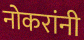
नोकरांनी